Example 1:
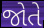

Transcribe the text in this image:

જોતે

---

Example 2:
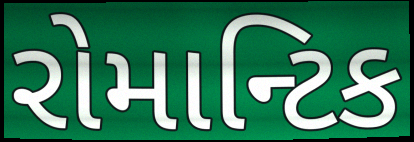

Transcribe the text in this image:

રોમાન્ટિક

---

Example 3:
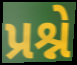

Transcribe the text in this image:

પ્રશ્ને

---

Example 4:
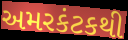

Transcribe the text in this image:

અમરકંટકથી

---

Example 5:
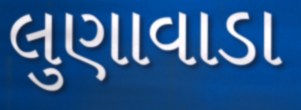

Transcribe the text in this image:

લુણાવાડા